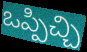
ఒప్పిచ్చి